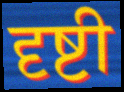
दृष्टी